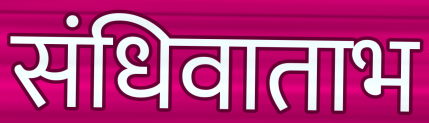
संधिवाताभ